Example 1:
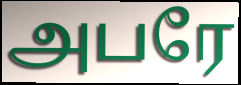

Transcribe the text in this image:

அபரே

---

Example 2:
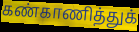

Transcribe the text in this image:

கண்காணித்துக்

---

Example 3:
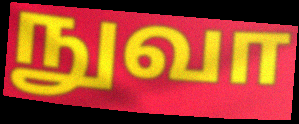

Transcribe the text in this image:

நுவா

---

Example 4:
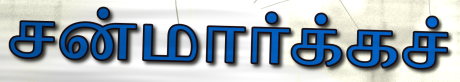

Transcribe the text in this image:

சன்மார்க்கச்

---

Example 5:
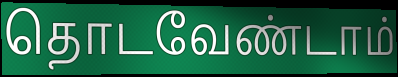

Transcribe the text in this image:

தொடவேண்டாம்